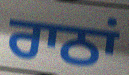
ਰਾਠਾਂ